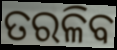
ତରଳିବ